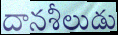
దానశీలుడు